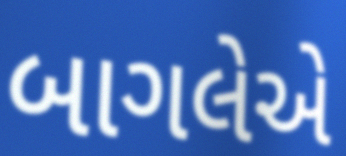
બાગલેએ